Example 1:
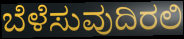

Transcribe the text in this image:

ಬೆಳೆಸುವುದಿರಲಿ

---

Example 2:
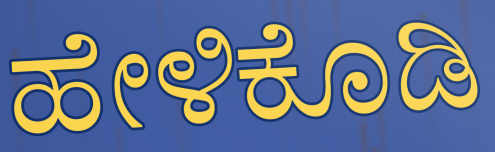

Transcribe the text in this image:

ಹೇಳಿಕೊಡಿ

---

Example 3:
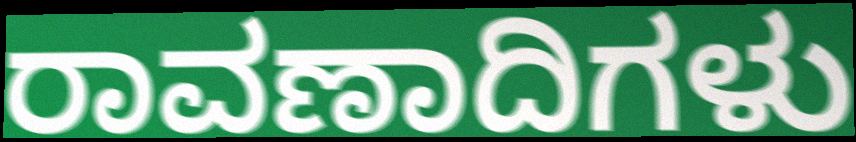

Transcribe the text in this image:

ರಾವಣಾದಿಗಳು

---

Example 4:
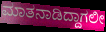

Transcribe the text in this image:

ಮಾತನಾಡಿದ್ದಾಗಲೀ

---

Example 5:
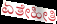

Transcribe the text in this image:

ಏತೇಹೀತಿ